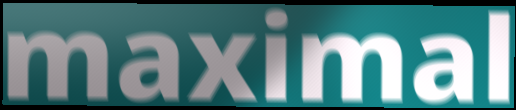
maximal